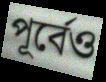
পূৰ্বেও